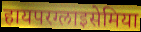
हायपरग्लाइसेमिया